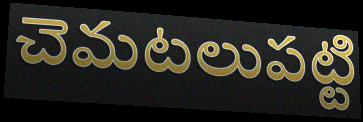
చెమటలుపట్టి